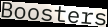
Boosters